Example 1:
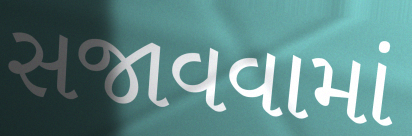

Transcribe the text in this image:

સજાવવામાં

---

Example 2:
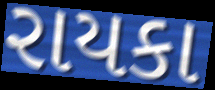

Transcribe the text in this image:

રાયકા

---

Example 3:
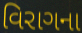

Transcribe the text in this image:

વિરાગના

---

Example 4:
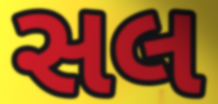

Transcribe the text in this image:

સલ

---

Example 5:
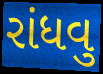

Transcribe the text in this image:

રાંધવુ